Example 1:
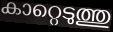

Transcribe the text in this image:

കാറ്റെടുത്തു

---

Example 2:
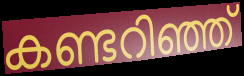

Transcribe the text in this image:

കണ്ടറിഞ്ഞ്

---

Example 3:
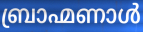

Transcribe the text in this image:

ബ്രാഹ്മണാൾ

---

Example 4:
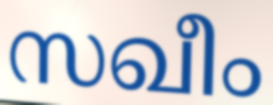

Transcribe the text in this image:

സഖീം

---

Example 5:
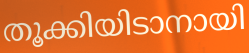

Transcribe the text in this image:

തൂക്കിയിടാനായി